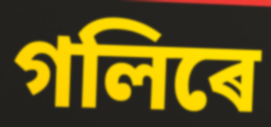
গলিৰে